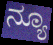
ನ್ಯೂ